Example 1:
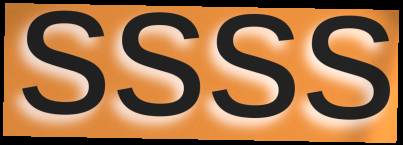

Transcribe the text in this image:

ssss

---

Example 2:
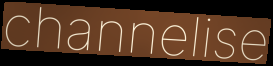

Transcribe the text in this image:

channelise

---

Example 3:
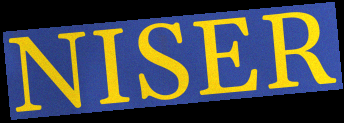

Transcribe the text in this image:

NISER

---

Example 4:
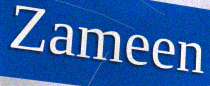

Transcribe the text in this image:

Zameen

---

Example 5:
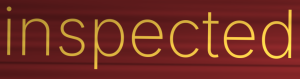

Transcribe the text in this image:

inspected